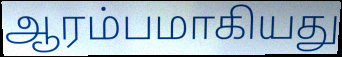
ஆரம்பமாகியது